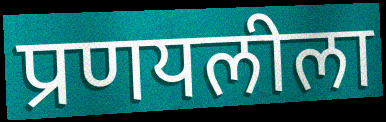
प्रणयलीला